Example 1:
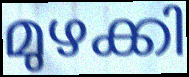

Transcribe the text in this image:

മുഴക്കി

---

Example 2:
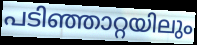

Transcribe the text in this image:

പടിഞ്ഞാറ്റയിലും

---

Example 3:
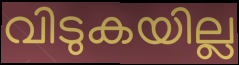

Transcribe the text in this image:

വിടുകയില്ല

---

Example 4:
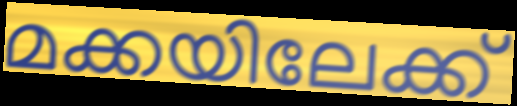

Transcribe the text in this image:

മക്കയിലേക്ക്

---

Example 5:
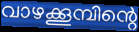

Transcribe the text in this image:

വാഴക്കൂമ്പിന്റെ